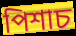
পিশাচ